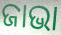
ଜାଭା